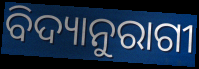
ବିଦ୍ୟାନୁରାଗୀ